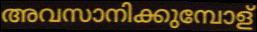
അവസാനിക്കുമ്പോള്